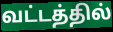
வட்டத்தில்